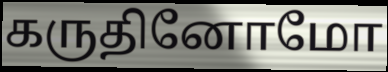
கருதினோமோ